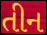
તીન